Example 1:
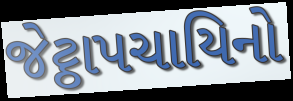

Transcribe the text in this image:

જેટ્ઠાપચાયિનો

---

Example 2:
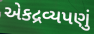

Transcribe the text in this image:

એકદ્રવ્યપણું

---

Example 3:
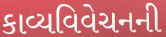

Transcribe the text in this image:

કાવ્યવિવેચનની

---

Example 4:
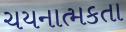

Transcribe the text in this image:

ચયનાત્મકતા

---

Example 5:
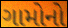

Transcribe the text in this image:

ગામોનો